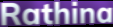
Rathina